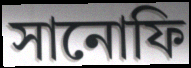
সানোফি